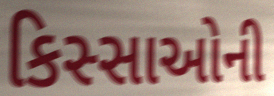
કિસ્સાઓની